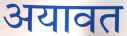
अयावत